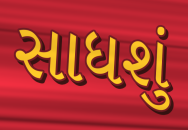
સાધશું